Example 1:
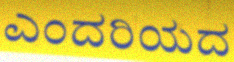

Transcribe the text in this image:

ಎಂದರಿಯದ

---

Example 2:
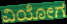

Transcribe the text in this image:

ವಿಯೋಗ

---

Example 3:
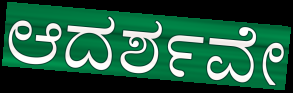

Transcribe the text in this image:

ಆದರ್ಶವೇ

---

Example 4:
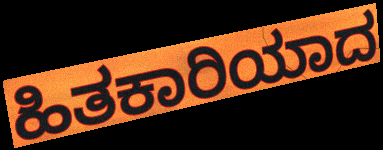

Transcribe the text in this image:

ಹಿತಕಾರಿಯಾದ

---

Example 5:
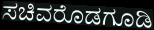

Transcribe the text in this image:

ಸಚಿವರೊಡಗೂಡಿ